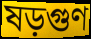
ষড়গুণ